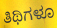
ತಿಥಿಗಳೂ